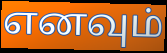
எனவும்